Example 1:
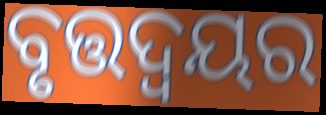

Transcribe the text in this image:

ବୃତ୍ତଦ୍ଵୟର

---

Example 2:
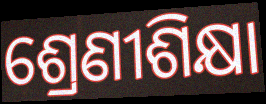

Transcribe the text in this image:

ଶ୍ରେଣୀଶିକ୍ଷା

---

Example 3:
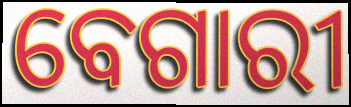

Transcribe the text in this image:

ବେଗାରୀ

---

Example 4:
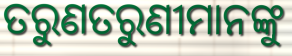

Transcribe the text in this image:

ତରୁଣତରୁଣୀମାନଙ୍କୁ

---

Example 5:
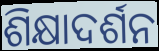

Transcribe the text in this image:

ଶିକ୍ଷାଦର୍ଶନ